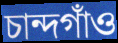
চান্দগাঁও